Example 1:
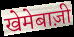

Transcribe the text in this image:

खेमेबाज़ी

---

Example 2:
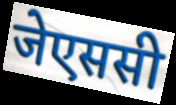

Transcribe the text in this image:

जेएससी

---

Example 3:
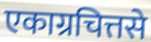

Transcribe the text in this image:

एकाग्रचित्तसे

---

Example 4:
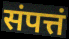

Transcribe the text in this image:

संपत्तं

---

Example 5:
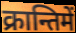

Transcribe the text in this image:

क्रान्तिमें